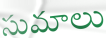
సుమాలు